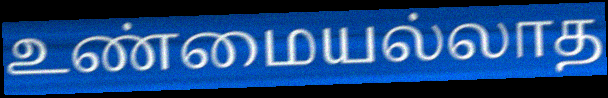
உண்மையல்லாத